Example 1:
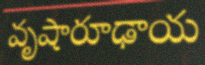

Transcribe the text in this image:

వృషారూఢాయ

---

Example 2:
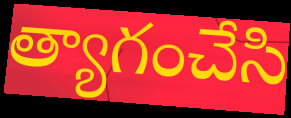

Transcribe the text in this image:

త్యాగంచేసి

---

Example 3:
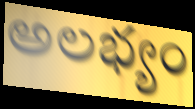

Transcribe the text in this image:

అలభ్యం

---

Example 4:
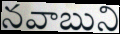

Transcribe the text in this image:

నవాబుని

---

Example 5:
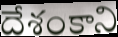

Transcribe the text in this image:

దేశంకాని